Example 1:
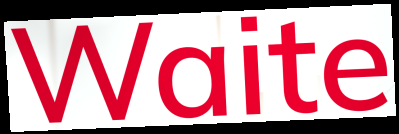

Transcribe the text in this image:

Waite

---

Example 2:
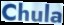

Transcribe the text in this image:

Chula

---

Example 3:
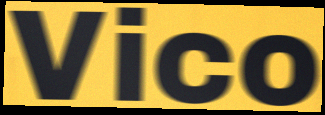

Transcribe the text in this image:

Vico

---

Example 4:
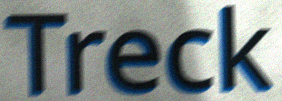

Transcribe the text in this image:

Treck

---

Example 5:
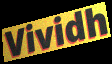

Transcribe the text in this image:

Vividh